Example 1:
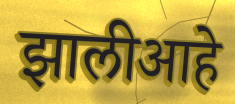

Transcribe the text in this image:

झालीआहे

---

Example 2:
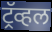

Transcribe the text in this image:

ट्रॅव्हल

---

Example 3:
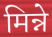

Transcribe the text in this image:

मिन्ने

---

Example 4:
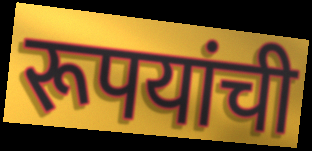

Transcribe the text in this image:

रूपयांची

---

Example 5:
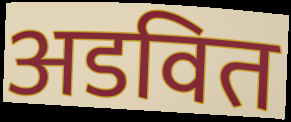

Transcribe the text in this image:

अडवित